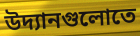
উদ্যানগুলোতে